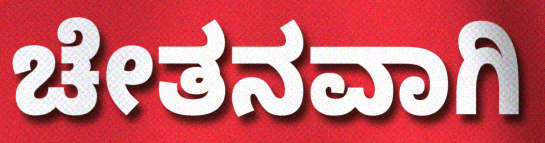
ಚೇತನವಾಗಿ